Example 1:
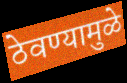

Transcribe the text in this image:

ठेवण्यामुळे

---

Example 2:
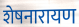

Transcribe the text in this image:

शेषनारायण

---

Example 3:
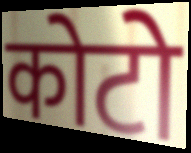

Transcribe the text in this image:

कोटो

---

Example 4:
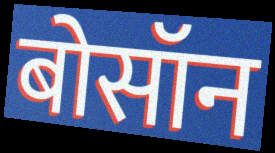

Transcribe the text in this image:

बोसॉन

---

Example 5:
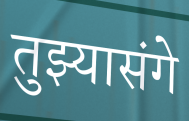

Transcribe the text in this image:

तुझ्यासंगे